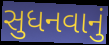
સુધનવાનું